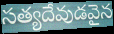
సత్యదేవుడవైన